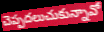
చెప్పదలుచుకున్నావో